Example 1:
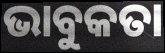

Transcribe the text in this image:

ଭାବୁକତା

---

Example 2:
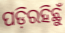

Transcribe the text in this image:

ପଡ଼ିରହିଛୁଁ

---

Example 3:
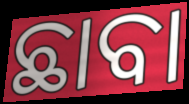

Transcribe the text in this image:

ଛାବା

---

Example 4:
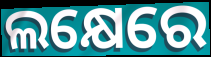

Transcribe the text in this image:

ଲକ୍ଷେରେ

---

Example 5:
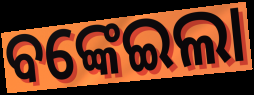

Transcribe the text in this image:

ବଙ୍କେଇଲା